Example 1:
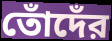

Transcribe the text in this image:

তোঁদেঁর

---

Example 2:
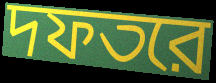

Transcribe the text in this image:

দফতরে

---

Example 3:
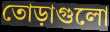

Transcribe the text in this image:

তোড়াগুলো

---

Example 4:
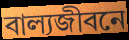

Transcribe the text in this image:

বাল্যজীবনে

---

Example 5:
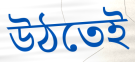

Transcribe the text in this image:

উঠতেই